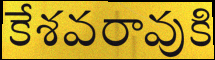
కేశవరావుకి